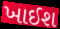
ખાઈશ